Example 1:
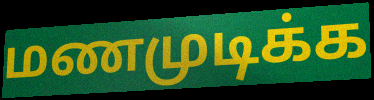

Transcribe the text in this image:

மணமுடிக்க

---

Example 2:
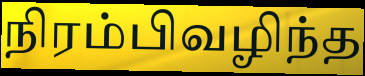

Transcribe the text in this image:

நிரம்பிவழிந்த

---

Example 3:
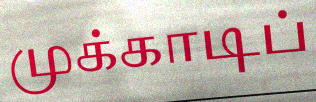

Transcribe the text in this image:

முக்காடிப்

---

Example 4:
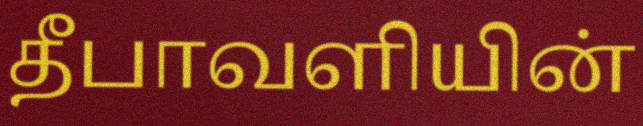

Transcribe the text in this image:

தீபாவளியின்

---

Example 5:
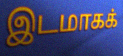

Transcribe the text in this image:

இடமாகக்